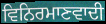
ਵਿਨਿਰਮਾਣਵਾਦੀ